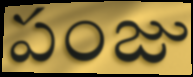
పంజు